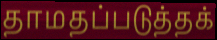
தாமதப்படுத்தக்